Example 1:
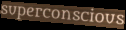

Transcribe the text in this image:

superconscious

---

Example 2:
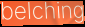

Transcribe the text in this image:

belching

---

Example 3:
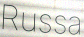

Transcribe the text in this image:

Russa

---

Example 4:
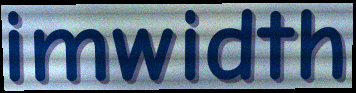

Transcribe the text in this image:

imwidth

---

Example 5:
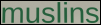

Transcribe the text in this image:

muslins